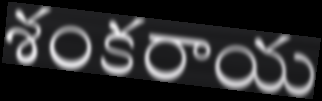
శంకరాయ